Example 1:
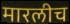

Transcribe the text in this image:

मारलीच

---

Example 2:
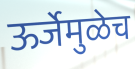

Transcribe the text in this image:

ऊर्जेमुळेच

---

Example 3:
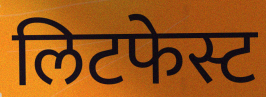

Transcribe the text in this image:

लिटफेस्ट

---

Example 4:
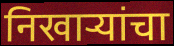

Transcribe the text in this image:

निखार्‍यांचा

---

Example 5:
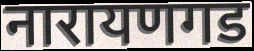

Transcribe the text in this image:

नारायणगड